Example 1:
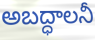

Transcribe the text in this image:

అబద్ధాలనీ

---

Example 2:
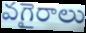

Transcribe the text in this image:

వగైరాలు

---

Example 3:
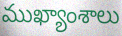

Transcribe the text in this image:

ముఖ్యాంశాలు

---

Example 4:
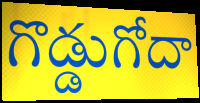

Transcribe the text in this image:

గొడ్డుగోదా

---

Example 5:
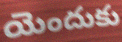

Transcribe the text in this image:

యెందుకు